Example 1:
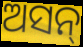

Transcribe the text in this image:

ଅସନ୍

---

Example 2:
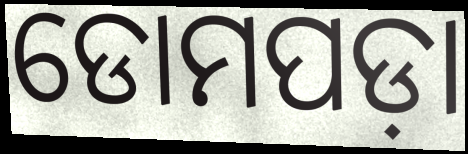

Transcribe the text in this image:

ଡୋମପଡ଼ା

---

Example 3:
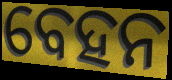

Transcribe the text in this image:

ବେହନ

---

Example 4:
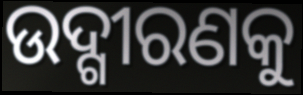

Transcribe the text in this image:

ଉଦ୍ଗୀରଣକୁ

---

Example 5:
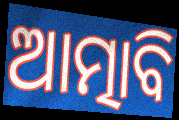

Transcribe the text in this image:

ଆତ୍ମାବି